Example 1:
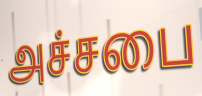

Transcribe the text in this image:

அச்சபை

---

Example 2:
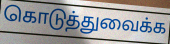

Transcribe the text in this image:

கொடுத்துவைக்க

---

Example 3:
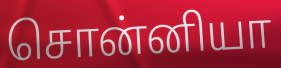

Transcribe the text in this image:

சொன்னியா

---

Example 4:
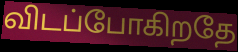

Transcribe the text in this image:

விடப்போகிறதே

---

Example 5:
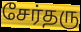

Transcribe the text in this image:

சேர்தரு